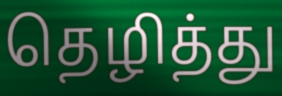
தெழித்து